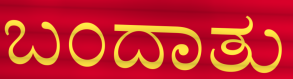
ಬಂದಾತು